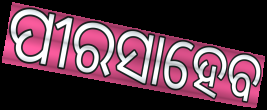
ପୀରସାହେବ